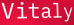
Vitaly